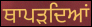
ਥਾਪੜਦਿਆਂ